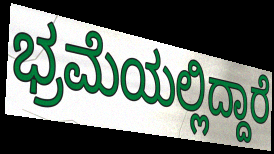
ಭ್ರಮೆಯಲ್ಲಿದ್ದಾರೆ